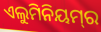
ଏଲୁମିନିୟମ୍‌ର